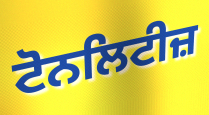
ਟੋਨਲਿਟੀਜ਼